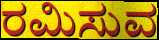
ರಮಿಸುವ